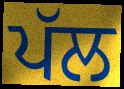
ਪੱਲ